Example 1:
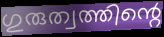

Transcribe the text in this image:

ഗുരുത്വത്തിന്റെ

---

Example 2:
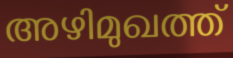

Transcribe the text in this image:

അഴിമുഖത്ത്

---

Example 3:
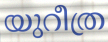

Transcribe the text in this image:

യുറീത്ര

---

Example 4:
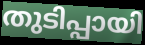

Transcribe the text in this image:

തുടിപ്പായി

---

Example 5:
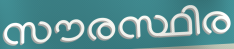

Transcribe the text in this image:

സൗരസ്ഥിര